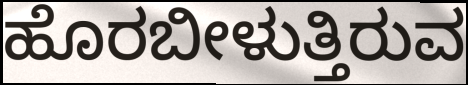
ಹೊರಬೀಳುತ್ತಿರುವ